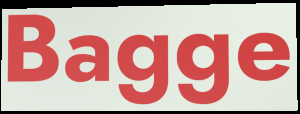
Bagge